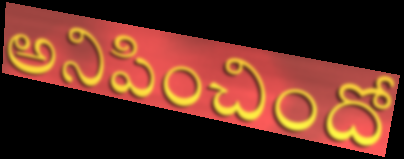
అనిపించిందో